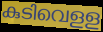
കുടിവെളള